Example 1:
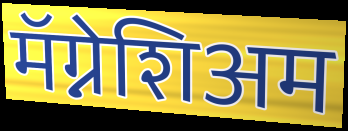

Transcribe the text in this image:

मॅग्नेशिअम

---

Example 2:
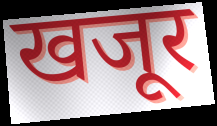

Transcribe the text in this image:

खजूर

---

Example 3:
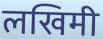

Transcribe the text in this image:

लखिमी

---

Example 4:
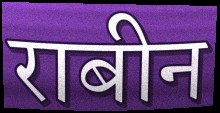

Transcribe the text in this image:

राबीन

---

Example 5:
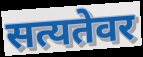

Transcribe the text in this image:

सत्यतेवर